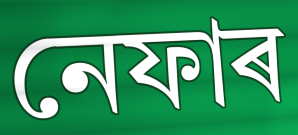
নেফাৰ